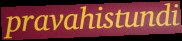
pravahistundi